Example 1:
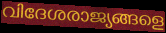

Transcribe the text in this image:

വിദേശരാജ്യങ്ങളെ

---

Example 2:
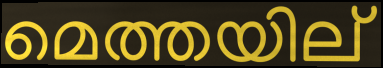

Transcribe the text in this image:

മെത്തയില്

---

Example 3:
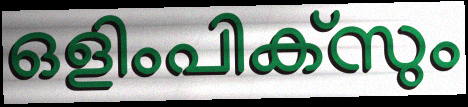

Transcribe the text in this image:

ഒളിംപിക്സും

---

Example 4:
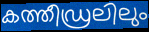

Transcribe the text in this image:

കത്തീഡ്രലിലും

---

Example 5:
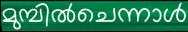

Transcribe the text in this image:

മുമ്പിൽചെന്നാൾ